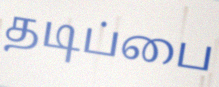
தடிப்பை